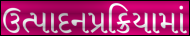
ઉત્પાદનપ્રક્રિયામાં